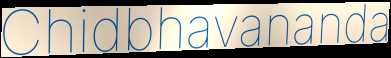
Chidbhavananda